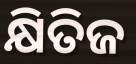
କ୍ଷିତିଜ